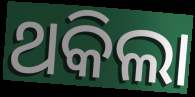
ଥକିଲା